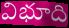
విభూది